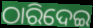
ଠାରିଦେଇ